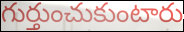
గుర్తుంచుకుంటారు